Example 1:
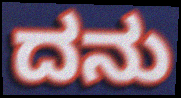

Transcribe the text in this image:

ದನು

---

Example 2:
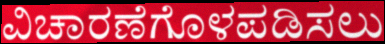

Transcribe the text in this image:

ವಿಚಾರಣೆಗೊಳಪಡಿಸಲು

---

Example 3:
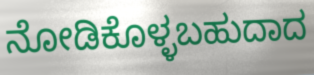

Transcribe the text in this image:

ನೋಡಿಕೊಳ್ಳಬಹುದಾದ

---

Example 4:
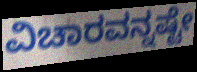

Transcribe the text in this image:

ವಿಚಾರವನ್ನಷ್ಟೇ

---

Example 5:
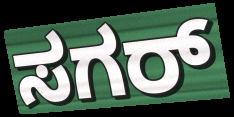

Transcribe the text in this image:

ಸಗರ್